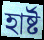
হাৰ্ষ্ট